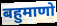
बहुमाणो